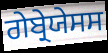
ਗੇਬ੍ਰੇਯੇਸਸ